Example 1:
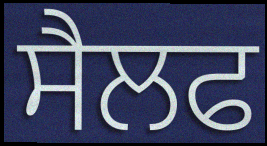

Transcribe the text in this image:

ਸੈਲਫ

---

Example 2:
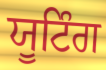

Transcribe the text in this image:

ਯੂਟਿੰਗ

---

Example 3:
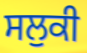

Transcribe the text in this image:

ਸਲੁਕੀ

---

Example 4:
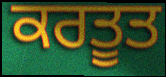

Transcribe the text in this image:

ਕਰਤੂਤ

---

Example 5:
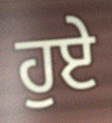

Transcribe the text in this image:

ਹੁਏ